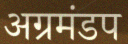
अग्रमंडप